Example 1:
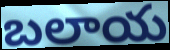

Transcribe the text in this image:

బలాయ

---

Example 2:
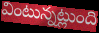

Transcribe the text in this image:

వింటున్నట్లుంది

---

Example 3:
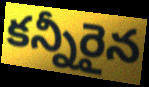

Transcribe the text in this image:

కన్నీరైన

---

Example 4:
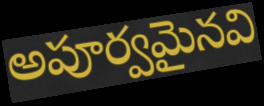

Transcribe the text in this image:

అపూర్వమైనవి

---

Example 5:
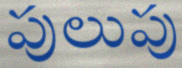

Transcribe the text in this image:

పులుపు